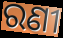
ରଣୀ